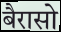
बैरासो